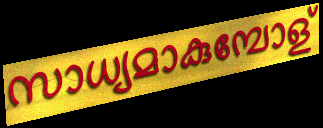
സാധ്യമാകുമ്പോള്